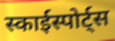
स्काईस्पोर्ट्स